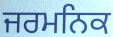
ਜਰਮਨਿਕ